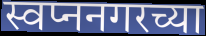
स्वप्ननगरच्या